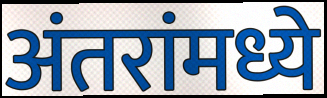
अंतरांमध्ये